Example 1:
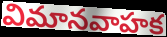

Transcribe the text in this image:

విమానవాహక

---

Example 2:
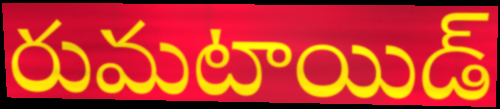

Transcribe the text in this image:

రుమటాయిడ్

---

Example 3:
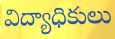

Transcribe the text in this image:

విద్యాధికులు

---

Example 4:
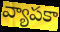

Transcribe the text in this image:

వ్యాపకా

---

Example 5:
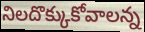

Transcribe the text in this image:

నిలదొక్కుకోవాలన్న